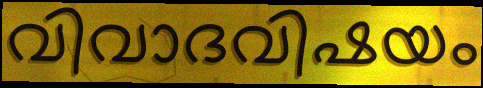
വിവാദവിഷയം